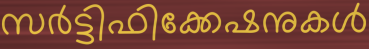
സർട്ടിഫിക്കേഷനുകൾ